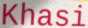
Khasi